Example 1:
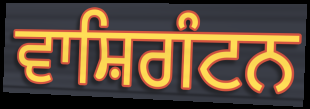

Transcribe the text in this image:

ਵਾਸ਼ਿਗੰਟਨ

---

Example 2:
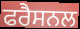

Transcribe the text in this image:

ਫਰੈਸਨਲ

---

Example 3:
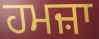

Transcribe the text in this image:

ਹਮਜ਼ਾ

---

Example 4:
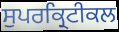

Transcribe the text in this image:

ਸੁਪਰਕ੍ਰਿਟੀਕਲ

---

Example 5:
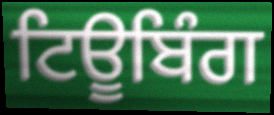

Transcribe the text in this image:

ਟਿਊਬਿੰਗ